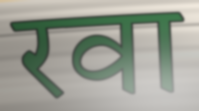
रवा